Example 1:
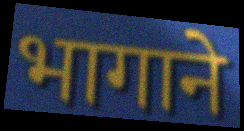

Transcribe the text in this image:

भागाने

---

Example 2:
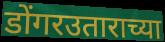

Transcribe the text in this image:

डोंगरउताराच्या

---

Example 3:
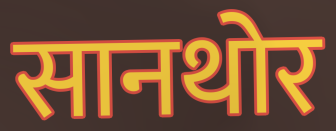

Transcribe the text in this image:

सानथोर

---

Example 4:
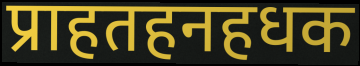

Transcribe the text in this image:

प्राहतहनहधक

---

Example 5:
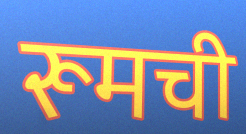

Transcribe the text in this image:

रूमची